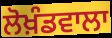
ਲੋਖ਼ੰਡਵਾਲਾ